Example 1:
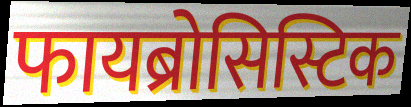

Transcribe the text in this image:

फायब्रोसिस्टिक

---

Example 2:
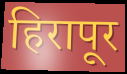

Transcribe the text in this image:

हिरापूर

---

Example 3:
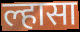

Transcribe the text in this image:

ल्हासा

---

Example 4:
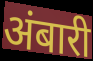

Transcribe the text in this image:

अंबारी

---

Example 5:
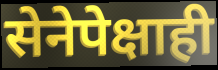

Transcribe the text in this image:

सेनेपेक्षाही